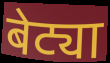
बेट्या